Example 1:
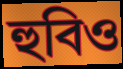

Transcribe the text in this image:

হুবিও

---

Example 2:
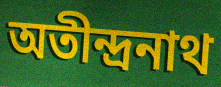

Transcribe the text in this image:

অতীন্দ্রনাথ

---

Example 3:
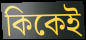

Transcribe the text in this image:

কিকেই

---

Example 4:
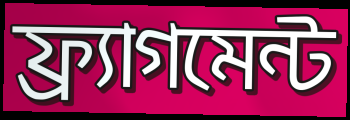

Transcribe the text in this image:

ফ্র্যাগমেন্ট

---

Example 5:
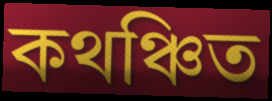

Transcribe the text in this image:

কথঞ্চিত